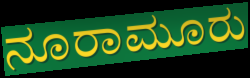
ನೂರಾಮೂರು